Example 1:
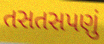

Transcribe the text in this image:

તસતસપણું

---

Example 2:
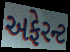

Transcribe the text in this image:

અફેરન્ટ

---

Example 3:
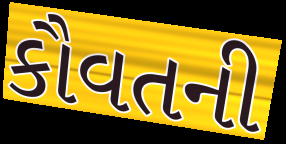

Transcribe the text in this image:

કૌવતની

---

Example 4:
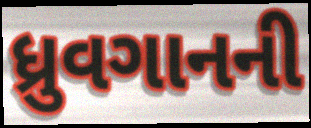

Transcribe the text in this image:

ધ્રુવગાનની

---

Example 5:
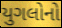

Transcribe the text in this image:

યુગલોનો